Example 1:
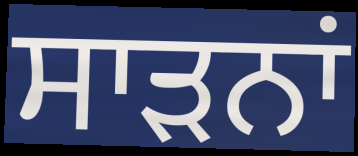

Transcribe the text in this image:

ਸਾੜਨਾਂ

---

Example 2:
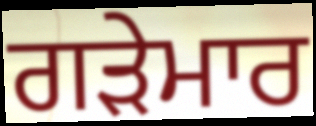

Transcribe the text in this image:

ਗੜੇਮਾਰ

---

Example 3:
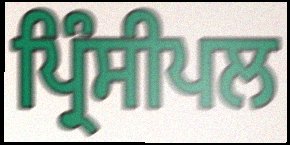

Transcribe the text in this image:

ਪ੍ਰਿੰਸੀਪਲ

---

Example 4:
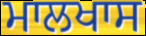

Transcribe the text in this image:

ਮਾਲਖਾਸ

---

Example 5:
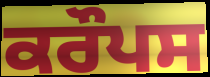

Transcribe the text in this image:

ਕਰੌਪਸ